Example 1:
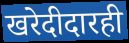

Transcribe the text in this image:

खरेदीदारही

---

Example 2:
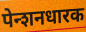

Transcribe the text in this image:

पेन्शनधारक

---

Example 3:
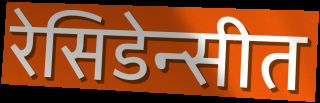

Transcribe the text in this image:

रेसिडेन्सीत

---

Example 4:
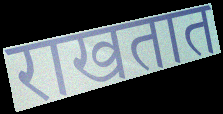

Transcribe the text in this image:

राखतात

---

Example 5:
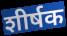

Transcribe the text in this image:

शीर्षक